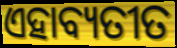
ଏହାବ୍ୟତୀତ